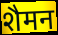
शैमन